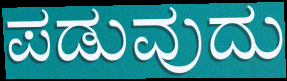
ಪಡುವುದು